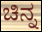
ಚಿನ್ನ